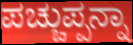
ಪಚ್ಚುಪ್ಪನ್ನಾ